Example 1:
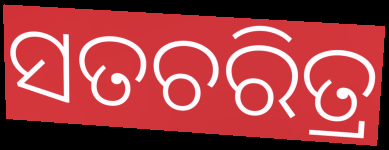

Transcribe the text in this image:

ସତଚରିତ୍ର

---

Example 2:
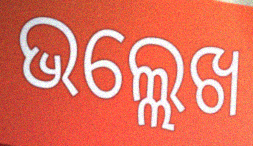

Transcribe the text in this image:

ଭଲ୍ଲେଖ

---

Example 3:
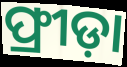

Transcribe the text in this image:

ଫ୍ରୀଡ଼ା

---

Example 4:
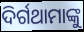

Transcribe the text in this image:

ଦିର୍ଗଥାମାଙ୍କୁ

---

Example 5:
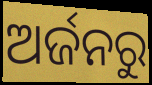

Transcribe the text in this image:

ଅର୍ଜନରୁ